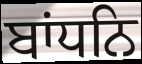
ਬਾਂਧਨਿ